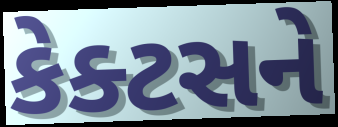
કેક્ટસને